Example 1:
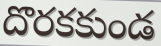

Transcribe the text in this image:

దొరకకుండ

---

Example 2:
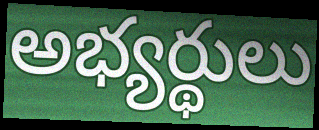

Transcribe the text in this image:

అభ్యర్థులు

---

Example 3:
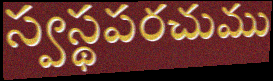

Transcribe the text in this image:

స్వస్థపరచుము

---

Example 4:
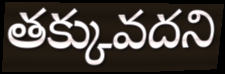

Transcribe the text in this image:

తక్కువదని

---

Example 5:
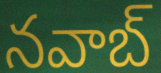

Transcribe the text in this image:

నవాబ్